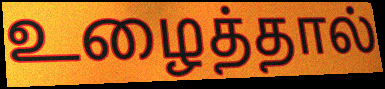
உழைத்தால்